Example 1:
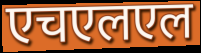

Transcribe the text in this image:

एचएलएल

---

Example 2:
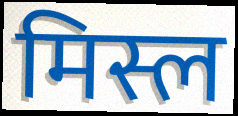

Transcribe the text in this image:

मिस्ल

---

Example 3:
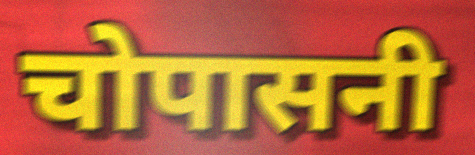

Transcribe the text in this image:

चोपासनी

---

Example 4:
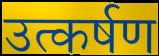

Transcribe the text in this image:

उत्कर्षण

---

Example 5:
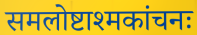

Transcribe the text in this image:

समलोष्टाश्मकांचनः